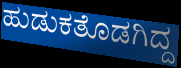
ಹುಡುಕತೊಡಗಿದ್ದ